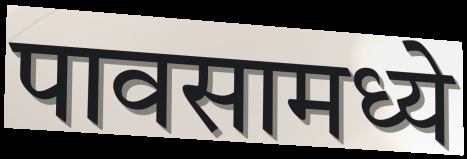
पावसामध्ये